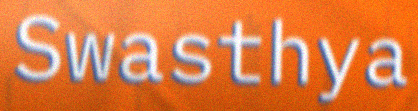
Swasthya